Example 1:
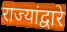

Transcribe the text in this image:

राज्यांद्वारे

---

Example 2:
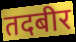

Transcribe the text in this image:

तदबीर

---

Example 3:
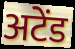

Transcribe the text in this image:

अटेंड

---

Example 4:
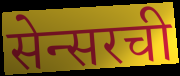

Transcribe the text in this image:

सेन्सरची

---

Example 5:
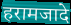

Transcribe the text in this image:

हरामजादे